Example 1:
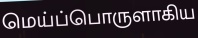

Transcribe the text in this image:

மெய்ப்பொருளாகிய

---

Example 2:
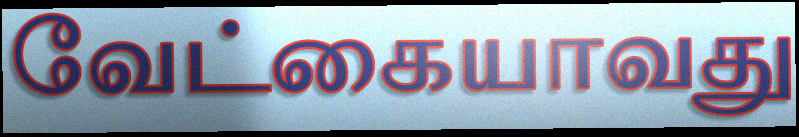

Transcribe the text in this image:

வேட்கையாவது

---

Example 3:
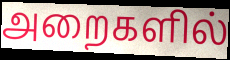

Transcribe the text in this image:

அறைகளில்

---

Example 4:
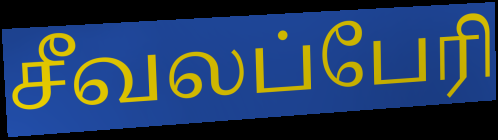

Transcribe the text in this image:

சீவலப்பேரி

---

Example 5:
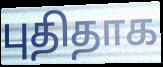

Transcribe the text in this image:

புதிதாக